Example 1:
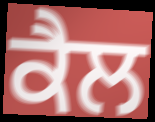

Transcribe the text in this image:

ਕੈਲ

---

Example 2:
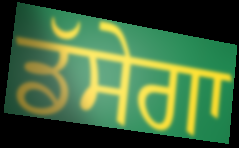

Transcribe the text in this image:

ਡੱਸੇਗਾ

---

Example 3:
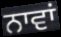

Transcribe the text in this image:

ਨਾਵਾਂ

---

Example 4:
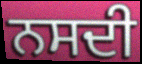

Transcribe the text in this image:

ਨਸਦੀ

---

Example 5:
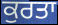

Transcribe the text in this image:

ਕੁਰਤਾ